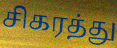
சிகரத்து